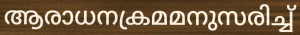
ആരാധനക്രമമനുസരിച്ച്